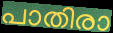
പാതിരാ